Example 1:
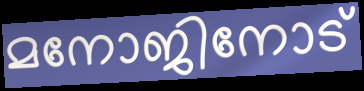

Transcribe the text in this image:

മനോജിനോട്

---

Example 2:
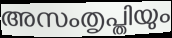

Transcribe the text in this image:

അസംതൃപ്തിയും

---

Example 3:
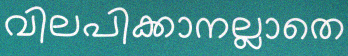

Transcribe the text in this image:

വിലപിക്കാനല്ലാതെ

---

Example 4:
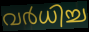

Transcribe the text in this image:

വർധിച്ച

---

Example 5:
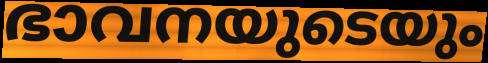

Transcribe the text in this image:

ഭാവനയുടെയും